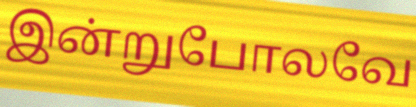
இன்றுபோலவே